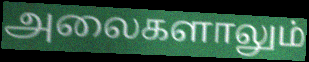
அலைகளாலும்